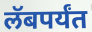
लॅबपर्यंत